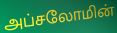
அப்சலோமின்